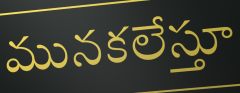
మునకలేస్తూ